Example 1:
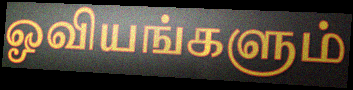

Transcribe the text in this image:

ஓவியங்களும்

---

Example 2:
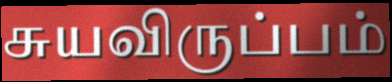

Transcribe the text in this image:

சுயவிருப்பம்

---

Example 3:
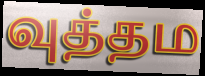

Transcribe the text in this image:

வுத்தம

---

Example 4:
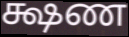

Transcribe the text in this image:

க்ஷண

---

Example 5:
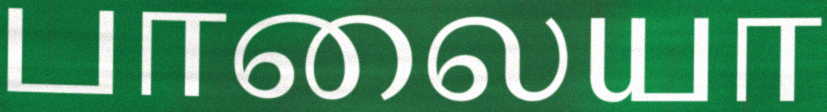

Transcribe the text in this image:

பாலையா